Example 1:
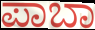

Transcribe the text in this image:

ಪಾಬಾ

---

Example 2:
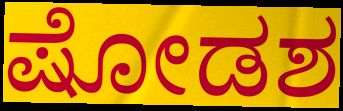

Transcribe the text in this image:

ಷೋಡಶ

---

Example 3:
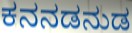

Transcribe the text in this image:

ಕನನಡನುಡ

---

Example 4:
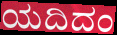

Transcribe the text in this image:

ಯದಿದಂ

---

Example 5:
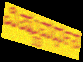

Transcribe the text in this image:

ವಿಷ್ಣುವರ್ಧನ